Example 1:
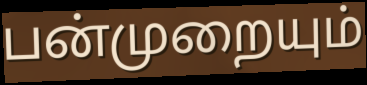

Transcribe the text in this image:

பன்முறையும்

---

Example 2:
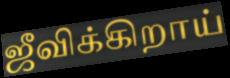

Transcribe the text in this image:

ஜீவிக்கிறாய்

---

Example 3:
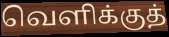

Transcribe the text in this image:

வெளிக்குத்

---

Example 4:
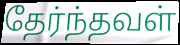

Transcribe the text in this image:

தேர்ந்தவள்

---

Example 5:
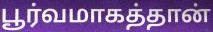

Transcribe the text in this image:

பூர்வமாகத்தான்